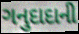
ગનુદાદાની